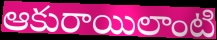
ఆకురాయిలాంటి